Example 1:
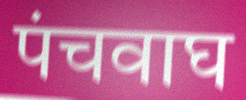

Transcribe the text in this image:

पंचवाघ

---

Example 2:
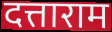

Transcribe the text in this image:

दत्ताराम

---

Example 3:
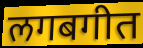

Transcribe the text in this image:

लगबगीत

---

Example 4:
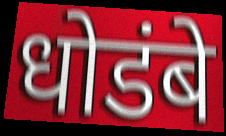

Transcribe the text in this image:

धोडंबे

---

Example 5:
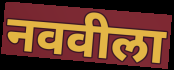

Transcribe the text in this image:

नववीला